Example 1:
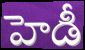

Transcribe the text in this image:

హెడీ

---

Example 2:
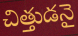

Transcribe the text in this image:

చిత్తుడనై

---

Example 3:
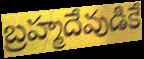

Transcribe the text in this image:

బ్రహ్మదేవుడికే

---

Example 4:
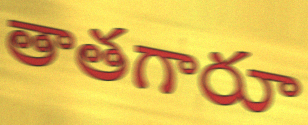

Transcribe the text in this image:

తాతగారూ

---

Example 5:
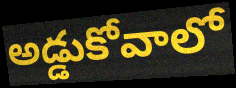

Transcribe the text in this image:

అడ్డుకోవాలో